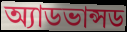
অ্যাডভান্সড